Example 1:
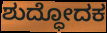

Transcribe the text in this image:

ಶುದ್ಧೋದಕ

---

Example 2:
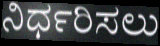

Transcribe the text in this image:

ನಿರ್ಧರಿಸಲು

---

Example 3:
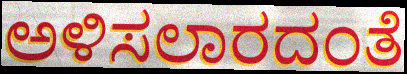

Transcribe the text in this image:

ಅಳಿಸಲಾರದಂತೆ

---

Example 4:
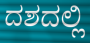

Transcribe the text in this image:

ದಶದಲ್ಲಿ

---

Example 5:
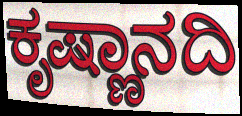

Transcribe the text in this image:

ಕೃಷ್ಣಾನದಿ